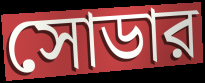
সোডার